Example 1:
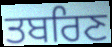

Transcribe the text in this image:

ਤਬਰਿਣ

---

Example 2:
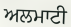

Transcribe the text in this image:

ਅਲਮਾਟੀ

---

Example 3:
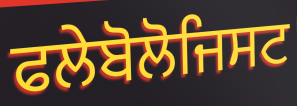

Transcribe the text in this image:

ਫਲੇਬੋਲੋਜਿਸਟ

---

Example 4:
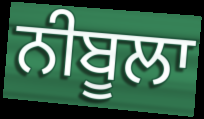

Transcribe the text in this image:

ਨੀਬੂਲਾ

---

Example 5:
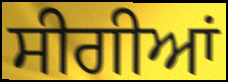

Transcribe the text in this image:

ਸੀਗੀਆਂ